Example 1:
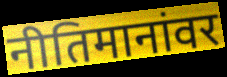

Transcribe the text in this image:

नीतिमानांवर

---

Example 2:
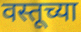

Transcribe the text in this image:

वस्तूच्या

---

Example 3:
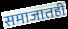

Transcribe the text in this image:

समाजातही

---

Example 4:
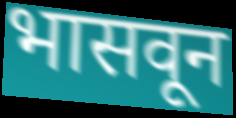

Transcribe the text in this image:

भासवून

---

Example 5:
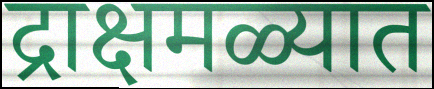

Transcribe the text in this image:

द्राक्षमळ्यात